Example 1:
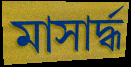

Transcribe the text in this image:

মাসার্দ্ধ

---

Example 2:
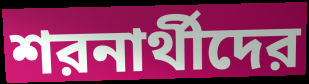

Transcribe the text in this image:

শরনার্থীদের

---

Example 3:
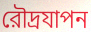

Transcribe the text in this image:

রৌদ্রযাপন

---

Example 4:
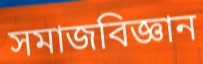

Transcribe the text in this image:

সমাজবিজ্ঞান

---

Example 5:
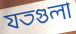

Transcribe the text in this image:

যতগুলা